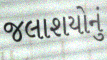
જલાશયોનું